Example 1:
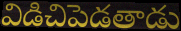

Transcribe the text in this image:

విడిచిపెడతాడు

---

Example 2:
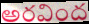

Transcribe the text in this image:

అరవింద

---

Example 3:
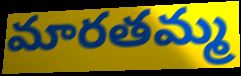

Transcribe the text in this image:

మారతమ్మ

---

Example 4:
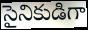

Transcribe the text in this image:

సైనికుడిగా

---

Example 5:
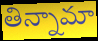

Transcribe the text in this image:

తిన్నామా